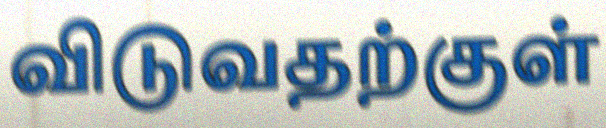
விடுவதற்குள்